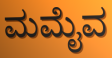
ಮಮೈವ